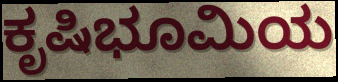
ಕೃಷಿಭೂಮಿಯ